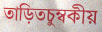
তাড়িতচুম্বকীয়